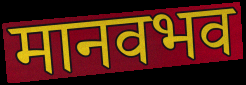
मानवभव